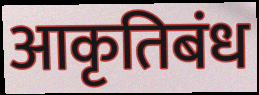
आकृतिबंध